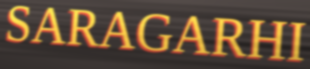
SARAGARHI